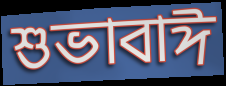
শুভাবাঈ